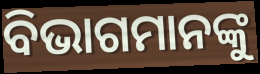
ବିଭାଗମାନଙ୍କୁ